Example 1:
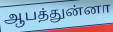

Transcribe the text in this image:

ஆபத்துன்னா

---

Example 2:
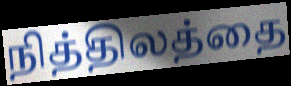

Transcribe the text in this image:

நித்திலத்தை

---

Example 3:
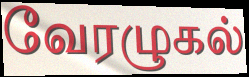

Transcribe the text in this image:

வேரழுகல்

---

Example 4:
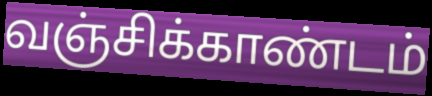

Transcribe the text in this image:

வஞ்சிக்காண்டம்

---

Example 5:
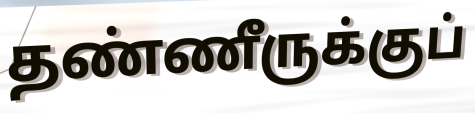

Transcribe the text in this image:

தண்ணீருக்குப்